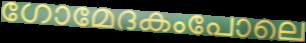
ഗോമേദകംപോലെ